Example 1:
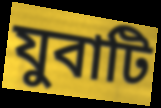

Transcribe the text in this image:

যুবাটি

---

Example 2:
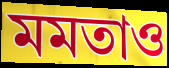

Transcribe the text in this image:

মমতাও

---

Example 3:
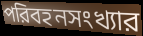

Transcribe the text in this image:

পরিবহনসংখ্যার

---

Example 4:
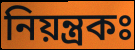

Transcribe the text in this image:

নিয়ন্ত্রকঃ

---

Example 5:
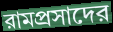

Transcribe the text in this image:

রামপ্রসাদের